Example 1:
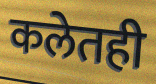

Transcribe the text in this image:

कलेतही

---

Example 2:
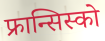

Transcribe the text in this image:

फ्रान्सिस्को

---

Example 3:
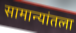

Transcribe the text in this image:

सामान्यांतला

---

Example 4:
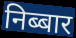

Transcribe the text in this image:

निब्बार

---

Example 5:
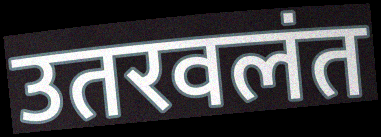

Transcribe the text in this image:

उतरवलंत